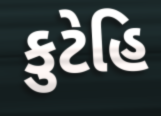
કુટેહિ